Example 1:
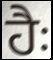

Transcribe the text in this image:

ਹੈਃ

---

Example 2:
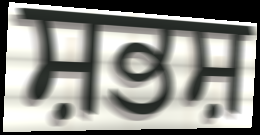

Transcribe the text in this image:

ਸ਼ਭਸ਼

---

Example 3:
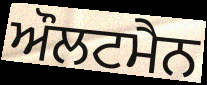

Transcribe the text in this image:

ਔਲਟਮੈਨ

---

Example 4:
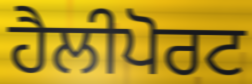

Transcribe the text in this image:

ਹੈਲੀਪੋਰਟ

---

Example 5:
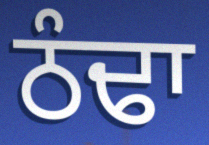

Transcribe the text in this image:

ਠੰਢਾ